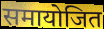
समायोजित